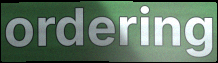
ordering